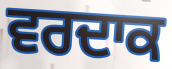
ਵਰਦਾਕ